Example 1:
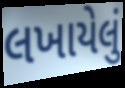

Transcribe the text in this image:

લખાયેલું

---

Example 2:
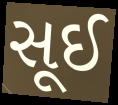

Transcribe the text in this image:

સૂઈ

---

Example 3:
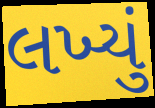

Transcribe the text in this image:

લખ્યું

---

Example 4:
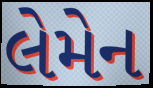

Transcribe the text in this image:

લેમેન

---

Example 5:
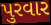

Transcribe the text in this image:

પુરવાર